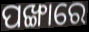
ପଙ୍ଖାରେ